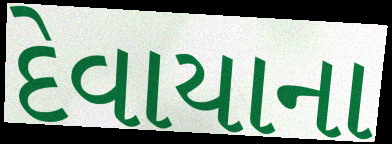
દેવાયાના